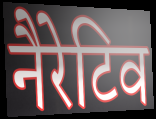
नैरेटिव